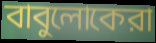
বাবুলোকেরা